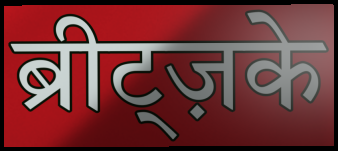
ब्रीट्ज़के